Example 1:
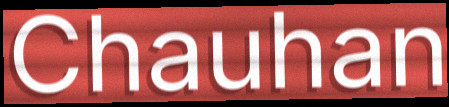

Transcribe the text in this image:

Chauhan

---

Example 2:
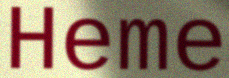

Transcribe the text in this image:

Heme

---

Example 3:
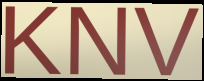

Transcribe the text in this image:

KNV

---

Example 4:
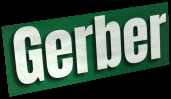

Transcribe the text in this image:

Gerber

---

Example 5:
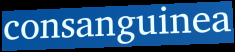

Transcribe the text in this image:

consanguinea